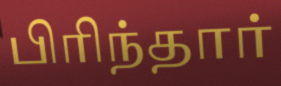
பிரிந்தார்